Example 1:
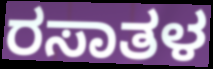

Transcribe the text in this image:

ರಸಾತಳ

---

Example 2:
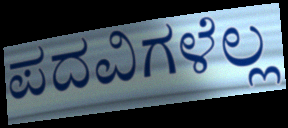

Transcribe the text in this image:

ಪದವಿಗಳೆಲ್ಲ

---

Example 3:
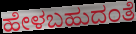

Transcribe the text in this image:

ಹೇಳಬಹುದಂತೆ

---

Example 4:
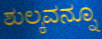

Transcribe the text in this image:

ಶುಲ್ಕವನ್ನೂ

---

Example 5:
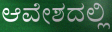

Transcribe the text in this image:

ಆವೇಶದಲ್ಲಿ